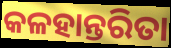
କଳହାନ୍ତରିତା